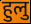
हुलु